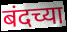
बंदच्या